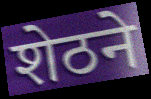
शेठने